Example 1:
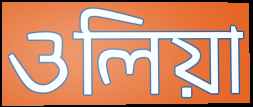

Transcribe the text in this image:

ওলিয়া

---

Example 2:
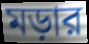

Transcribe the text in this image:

মড়ার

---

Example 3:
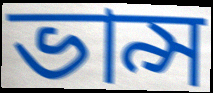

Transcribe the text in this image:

ভান্স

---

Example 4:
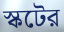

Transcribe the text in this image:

স্কটের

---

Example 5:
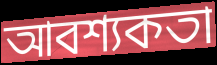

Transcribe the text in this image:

আবশ্যকতা